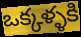
ఒక్కళ్ళకి